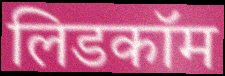
लिडकॉम